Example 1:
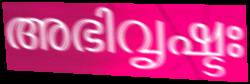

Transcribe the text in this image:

അഭിവൃഷ്ടഃ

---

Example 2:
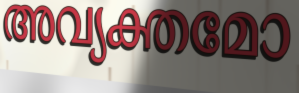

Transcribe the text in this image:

അവ്യക്തമോ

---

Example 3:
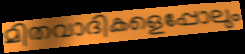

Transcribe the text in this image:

മിതവാദികളെപ്പോലും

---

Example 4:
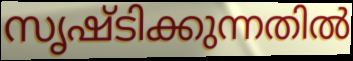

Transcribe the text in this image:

സൃഷ്ടിക്കുന്നതിൽ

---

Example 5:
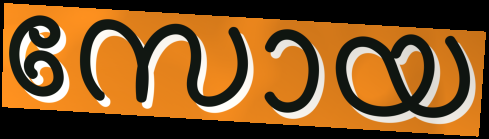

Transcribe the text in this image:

സോയ